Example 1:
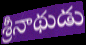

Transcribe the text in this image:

శ్రీనాథుడు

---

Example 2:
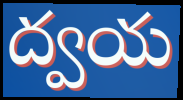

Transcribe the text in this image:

ద్వయ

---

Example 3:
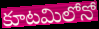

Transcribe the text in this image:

కూటమిలోనో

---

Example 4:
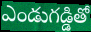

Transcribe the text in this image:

ఎండుగడ్డితో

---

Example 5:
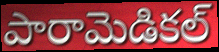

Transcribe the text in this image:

పారామెడికల్